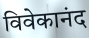
विवेकानंद